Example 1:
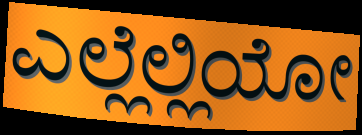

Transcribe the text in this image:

ಎಲ್ಲೆಲ್ಲಿಯೋ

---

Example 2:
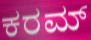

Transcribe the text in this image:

ಕರಮ್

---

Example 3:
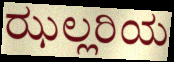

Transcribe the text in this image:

ಝಲ್ಲರಿಯ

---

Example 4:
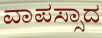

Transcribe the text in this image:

ವಾಪಸ್ಸಾದ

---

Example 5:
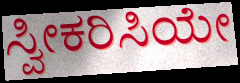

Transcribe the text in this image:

ಸ್ವೀಕರಿಸಿಯೇ